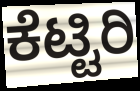
ಕೆಟ್ಟಿರಿ